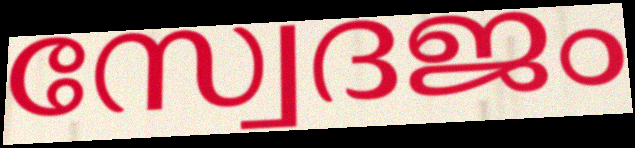
സ്വേദജം